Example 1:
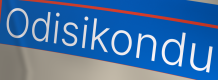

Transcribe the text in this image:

Odisikondu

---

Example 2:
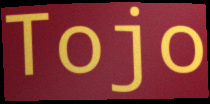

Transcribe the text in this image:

Tojo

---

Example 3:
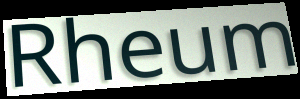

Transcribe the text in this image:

Rheum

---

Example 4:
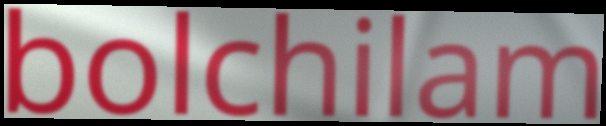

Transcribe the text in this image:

bolchilam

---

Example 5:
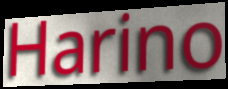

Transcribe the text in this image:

Harino